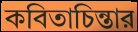
কবিতাচিন্তার